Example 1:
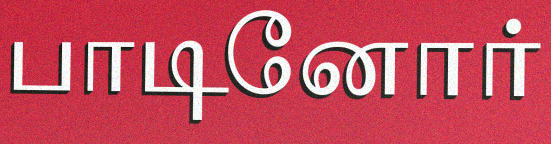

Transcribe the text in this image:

பாடினோர்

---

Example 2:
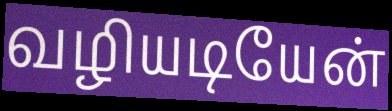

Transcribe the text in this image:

வழியடியேன்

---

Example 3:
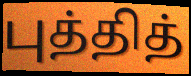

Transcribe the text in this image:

புத்தித்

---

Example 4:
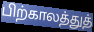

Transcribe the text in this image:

பிற்காலத்துத்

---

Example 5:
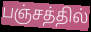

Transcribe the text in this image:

பஞ்சத்தில்